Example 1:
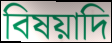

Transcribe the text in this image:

বিষয়াদি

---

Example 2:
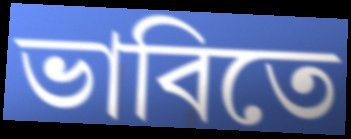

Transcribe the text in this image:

ভাবিতে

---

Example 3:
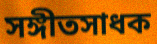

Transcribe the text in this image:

সঙ্গীতসাধক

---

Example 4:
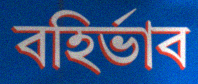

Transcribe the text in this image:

বহির্ভাব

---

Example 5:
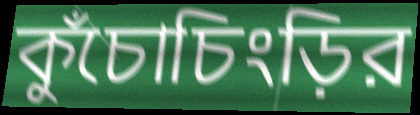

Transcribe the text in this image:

কুঁচোচিংড়ির